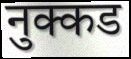
नुक्कड